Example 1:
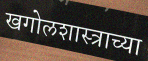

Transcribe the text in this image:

खगोलशास्त्राच्या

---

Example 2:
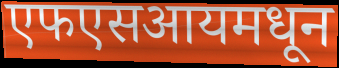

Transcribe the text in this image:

एफएसआयमधून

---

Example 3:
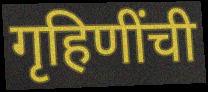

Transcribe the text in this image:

गृहिणींची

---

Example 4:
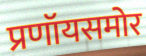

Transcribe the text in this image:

प्रणॉयसमोर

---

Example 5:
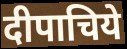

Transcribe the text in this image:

दीपाचिये